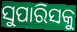
ସୁପାରିସକୁ